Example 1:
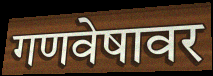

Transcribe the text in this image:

गणवेषावर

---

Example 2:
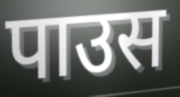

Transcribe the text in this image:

पाउस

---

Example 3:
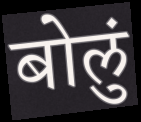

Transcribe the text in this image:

बोलुं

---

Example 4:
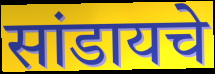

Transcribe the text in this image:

सांडायचे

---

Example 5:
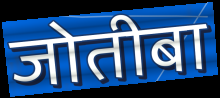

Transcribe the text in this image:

जोतीबा